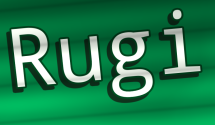
Rugi